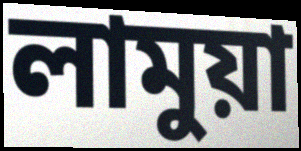
লামুয়া